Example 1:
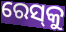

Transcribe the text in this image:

ରେସ୍‌କୁ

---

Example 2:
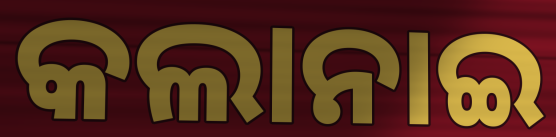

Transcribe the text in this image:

କଲାନାଇ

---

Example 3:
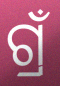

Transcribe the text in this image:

ଗ୍ରଁ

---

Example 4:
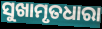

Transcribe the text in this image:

ସୁଖାମୃତଧାରା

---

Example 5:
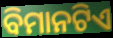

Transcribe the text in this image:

ବିମାନଟିଏ